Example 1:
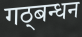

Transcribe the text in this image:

गठ्बन्धन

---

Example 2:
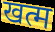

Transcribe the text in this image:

खत्म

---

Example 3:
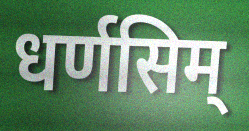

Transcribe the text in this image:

धर्णसिम्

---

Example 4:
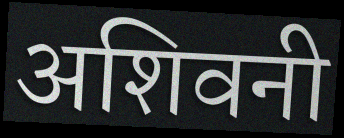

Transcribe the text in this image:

अशिवनी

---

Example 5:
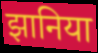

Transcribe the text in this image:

झानिया